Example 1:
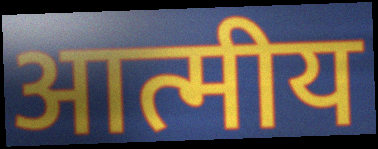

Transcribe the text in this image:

आत्मीय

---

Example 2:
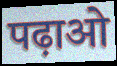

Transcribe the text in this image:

पढ़ाओ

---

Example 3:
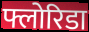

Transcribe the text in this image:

फ्लोरिडा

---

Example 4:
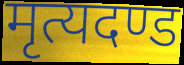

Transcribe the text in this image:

मृत्यदण्ड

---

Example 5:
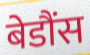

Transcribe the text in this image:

बेडौंस